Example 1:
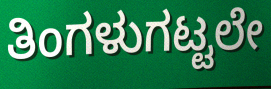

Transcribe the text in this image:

ತಿಂಗಳುಗಟ್ಟಲೇ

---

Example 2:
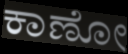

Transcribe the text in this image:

ಕಾಣೋ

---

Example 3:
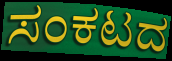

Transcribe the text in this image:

ಸಂಕಟದ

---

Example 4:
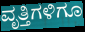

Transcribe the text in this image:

ವೃತ್ತಿಗಳಿಗೂ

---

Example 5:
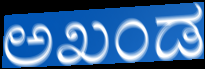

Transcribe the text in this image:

ಅಖಂಡ